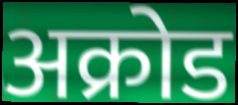
अक्रोड